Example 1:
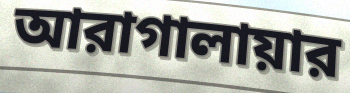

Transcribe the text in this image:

আরাগালায়ার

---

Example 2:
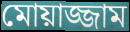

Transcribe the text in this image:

মোয়াজ্জাম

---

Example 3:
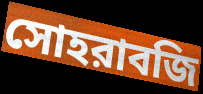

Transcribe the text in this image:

সোহরাবজি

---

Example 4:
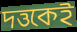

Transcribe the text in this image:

দত্তকেই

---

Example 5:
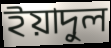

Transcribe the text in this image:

ইয়াদুল